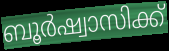
ബൂർഷ്വാസിക്ക്